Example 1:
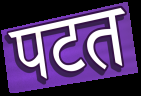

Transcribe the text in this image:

पटत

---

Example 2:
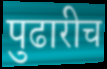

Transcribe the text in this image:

पुढारीच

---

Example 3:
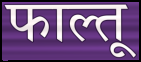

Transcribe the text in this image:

फाल्तू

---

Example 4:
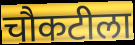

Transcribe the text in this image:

चौकटीला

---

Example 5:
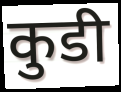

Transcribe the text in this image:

कुडी